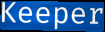
Keeper